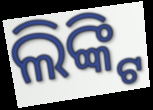
ଲିଙ୍କ୍ଟି